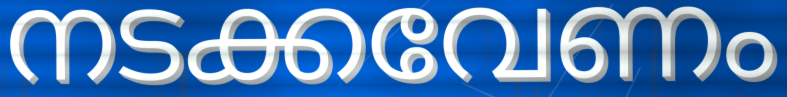
നടക്കവേണം